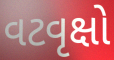
વટવૃક્ષો